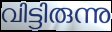
വിട്ടിരുന്നു